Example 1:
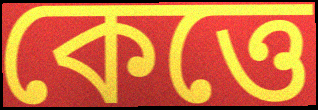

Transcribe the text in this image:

কেত্তে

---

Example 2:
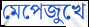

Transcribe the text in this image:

মেপেজুখে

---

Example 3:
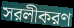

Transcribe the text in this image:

সরলীকরণ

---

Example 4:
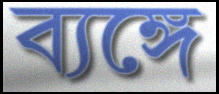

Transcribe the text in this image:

ব্যঙ্গে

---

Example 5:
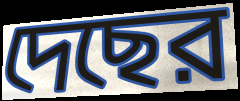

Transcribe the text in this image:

দেছের